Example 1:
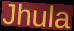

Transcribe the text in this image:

Jhula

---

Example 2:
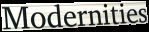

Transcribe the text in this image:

Modernities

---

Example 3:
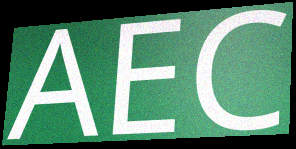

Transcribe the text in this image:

AEC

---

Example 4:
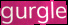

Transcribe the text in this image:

gurgle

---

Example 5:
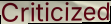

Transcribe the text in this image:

Criticized